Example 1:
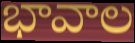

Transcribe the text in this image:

భావాల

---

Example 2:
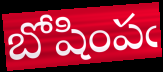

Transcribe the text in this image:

బోషింపఁ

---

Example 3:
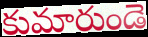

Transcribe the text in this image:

కుమారుండె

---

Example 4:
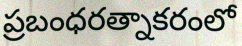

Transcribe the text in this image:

ప్రబంధరత్నాకరంలో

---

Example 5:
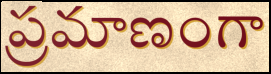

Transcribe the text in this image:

ప్రమాణంగా